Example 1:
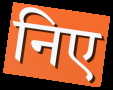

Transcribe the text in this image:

निए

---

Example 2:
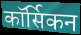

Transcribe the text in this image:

कॉर्सिकन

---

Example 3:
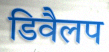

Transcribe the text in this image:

डिवैलप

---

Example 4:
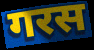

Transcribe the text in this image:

गरस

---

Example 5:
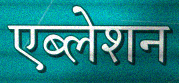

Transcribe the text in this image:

एब्लेशन